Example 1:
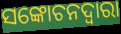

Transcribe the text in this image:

ସଙ୍କୋଚନଦ୍ୱାରା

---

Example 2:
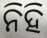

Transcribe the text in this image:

ନିହି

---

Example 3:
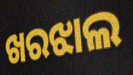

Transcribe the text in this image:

ଖରଝାଲ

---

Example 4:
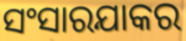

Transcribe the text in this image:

ସଂସାରଯାକର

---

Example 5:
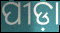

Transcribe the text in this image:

ପୀଡ଼ା